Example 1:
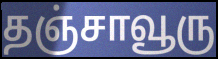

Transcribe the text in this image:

தஞ்சாவூரு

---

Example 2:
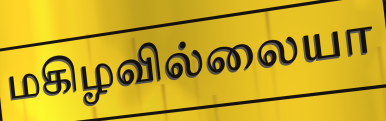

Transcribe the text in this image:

மகிழவில்லையா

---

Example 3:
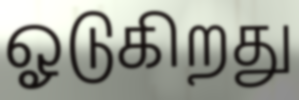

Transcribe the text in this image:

ஓடுகிறது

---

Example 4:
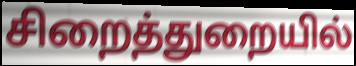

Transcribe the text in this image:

சிறைத்துறையில்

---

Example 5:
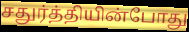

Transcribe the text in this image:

சதுர்த்தியின்போது